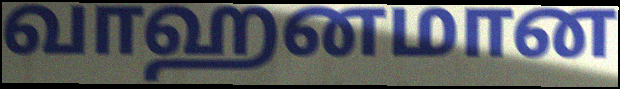
வாஹனமான